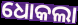
ଧୋକଲା